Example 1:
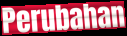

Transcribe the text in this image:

Perubahan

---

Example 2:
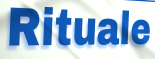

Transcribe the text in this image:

Rituale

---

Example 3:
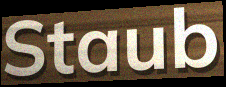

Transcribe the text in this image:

Staub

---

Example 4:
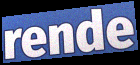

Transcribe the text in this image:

rende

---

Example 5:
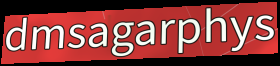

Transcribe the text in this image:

dmsagarphys